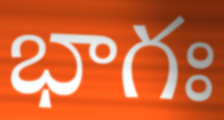
భాగః